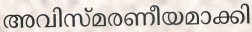
അവിസ്മരണീയമാക്കി